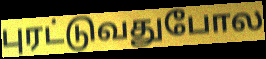
புரட்டுவதுபோல